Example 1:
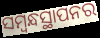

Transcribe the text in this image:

ସମ୍ବନ୍ଧସ୍ଥାପନର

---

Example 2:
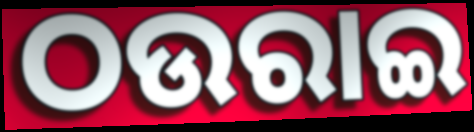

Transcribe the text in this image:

ଠଉରାଇ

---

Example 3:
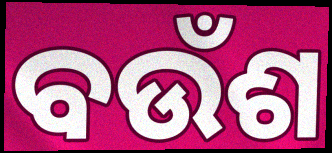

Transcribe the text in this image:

ବଉଁଶ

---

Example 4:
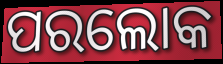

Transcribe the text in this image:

ପରଲୋକ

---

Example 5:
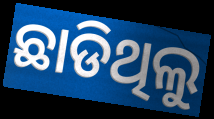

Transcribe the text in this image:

ଛାଡିଥିଲୁ